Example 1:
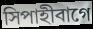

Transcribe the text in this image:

সিপাহীবাগে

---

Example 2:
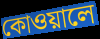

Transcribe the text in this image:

কোওয়ালে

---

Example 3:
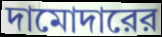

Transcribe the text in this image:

দামোদারের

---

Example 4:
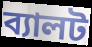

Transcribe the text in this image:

ব্যালট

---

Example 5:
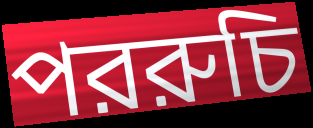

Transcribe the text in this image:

পররুচি